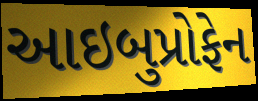
આઇબુપ્રોફેન